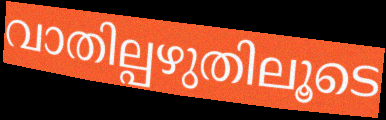
വാതില്പഴുതിലൂടെ